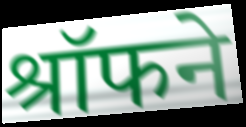
श्रॉफने